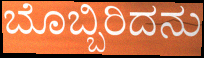
ಬೊಬ್ಬಿರಿದನು